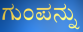
ಗುಂಪನ್ನು